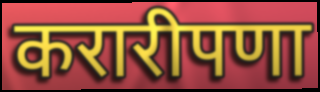
करारीपणा